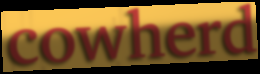
cowherd